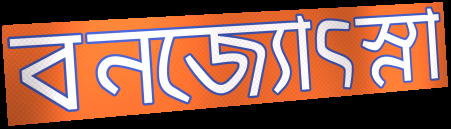
বনজ্যোৎস্না